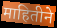
माहितीने